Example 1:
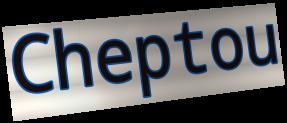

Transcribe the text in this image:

Cheptou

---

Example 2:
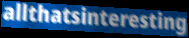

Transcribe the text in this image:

allthatsinteresting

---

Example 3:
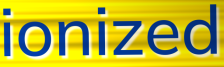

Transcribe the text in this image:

ionized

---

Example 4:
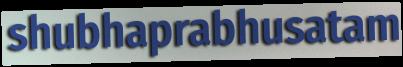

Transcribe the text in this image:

shubhaprabhusatam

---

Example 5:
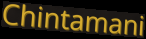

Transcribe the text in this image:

Chintamani